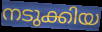
നടുക്കിയ